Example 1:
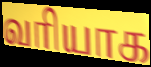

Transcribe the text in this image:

வரியாக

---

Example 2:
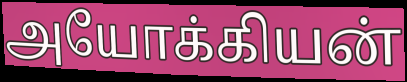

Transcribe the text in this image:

அயோக்கியன்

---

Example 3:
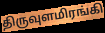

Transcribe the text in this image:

திருவுளமிரங்கி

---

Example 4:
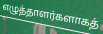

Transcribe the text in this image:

எழுத்தாளர்களாகத்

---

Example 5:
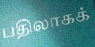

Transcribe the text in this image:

பதிலாகக்